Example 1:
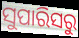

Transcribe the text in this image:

ସୁପାରିସରୁ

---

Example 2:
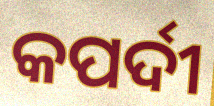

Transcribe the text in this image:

କପର୍ଦୀ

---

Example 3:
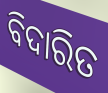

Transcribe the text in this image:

ବିଦାରିତ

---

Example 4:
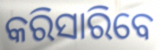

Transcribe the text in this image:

କରିସାରିବେ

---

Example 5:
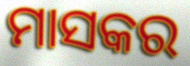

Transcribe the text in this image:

ମାସକର